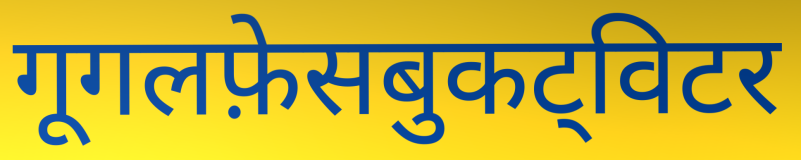
गूगलफ़ेसबुकट्विटर